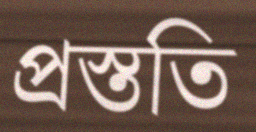
প্রস্ততি